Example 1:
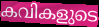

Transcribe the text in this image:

കവികളുടെ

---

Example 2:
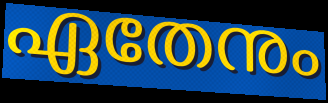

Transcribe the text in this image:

ഏതേനും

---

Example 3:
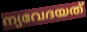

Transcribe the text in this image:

ന്യവേദയത്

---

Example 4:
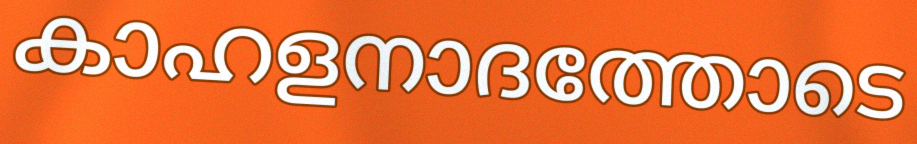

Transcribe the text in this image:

കാഹളനാദത്തോടെ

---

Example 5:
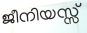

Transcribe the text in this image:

ജീനിയസ്സ്